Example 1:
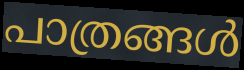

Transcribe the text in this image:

പാത്രങ്ങൾ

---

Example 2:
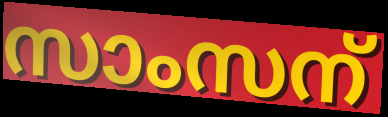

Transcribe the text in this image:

സാംസന്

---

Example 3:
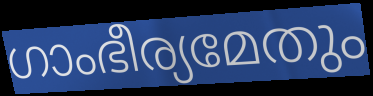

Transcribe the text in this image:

ഗാംഭീര്യമേതും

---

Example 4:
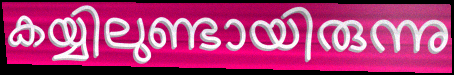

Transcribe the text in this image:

കയ്യിലുണ്ടായിരുന്നു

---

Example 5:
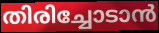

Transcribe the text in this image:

തിരിച്ചോടാൻ